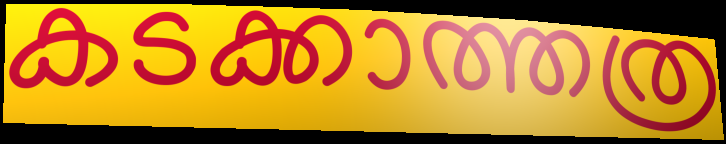
കടക്കാത്തത്ര